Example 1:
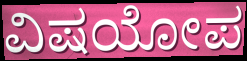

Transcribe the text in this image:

ವಿಷಯೋಪ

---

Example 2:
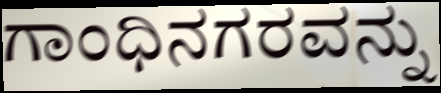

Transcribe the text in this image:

ಗಾಂಧಿನಗರವನ್ನು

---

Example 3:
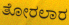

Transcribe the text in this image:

ತೋರಲಾರ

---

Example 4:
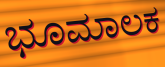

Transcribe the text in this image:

ಭೂಮಾಲಕ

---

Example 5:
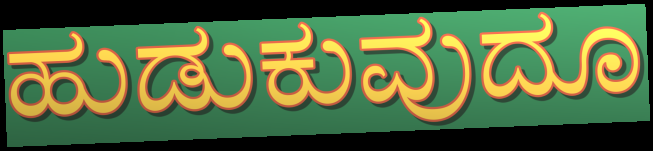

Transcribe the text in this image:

ಹುಡುಕುವುದೂ